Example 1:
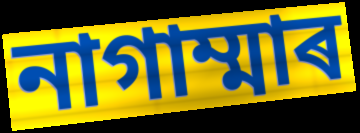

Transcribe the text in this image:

নাগাম্মাৰ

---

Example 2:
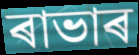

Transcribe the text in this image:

ৰাভাৰ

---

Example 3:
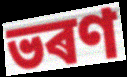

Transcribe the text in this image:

ভৰণ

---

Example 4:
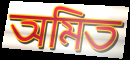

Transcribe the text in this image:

অমিত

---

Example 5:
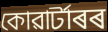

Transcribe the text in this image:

কোৱাৰ্টাৰৰ